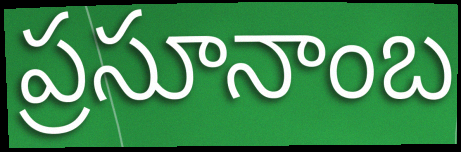
ప్రసూనాంబ